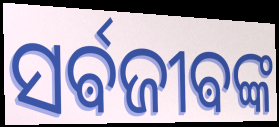
ସର୍ଵଜୀଵଙ୍କ